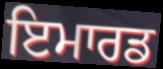
ਇਮਾਰਡ